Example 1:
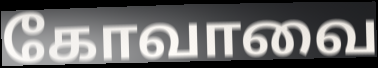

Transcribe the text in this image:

கோவாவை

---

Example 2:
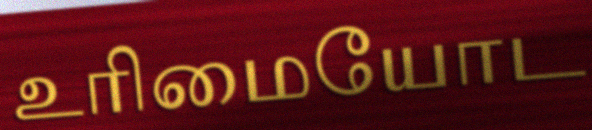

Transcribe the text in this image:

உரிமையோட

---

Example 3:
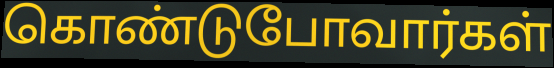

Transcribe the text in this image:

கொண்டுபோவார்கள்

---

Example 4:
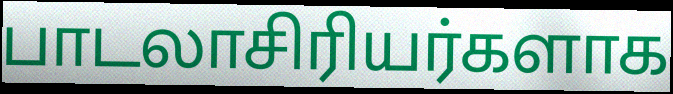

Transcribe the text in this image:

பாடலாசிரியர்களாக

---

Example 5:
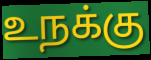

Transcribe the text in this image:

உநக்கு